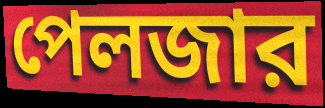
পেলজার